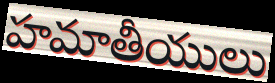
హమాతీయులు